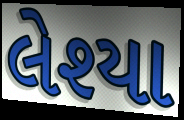
લેશ્યા